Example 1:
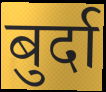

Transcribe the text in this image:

बुर्दा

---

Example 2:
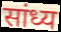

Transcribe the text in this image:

सांध्य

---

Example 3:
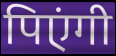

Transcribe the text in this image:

पिएंगी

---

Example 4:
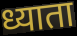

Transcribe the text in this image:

ध्याता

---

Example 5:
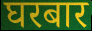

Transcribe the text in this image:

घरबार